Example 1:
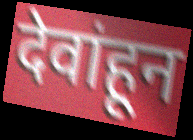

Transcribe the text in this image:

देवांहून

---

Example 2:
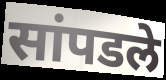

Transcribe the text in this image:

सांपडले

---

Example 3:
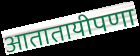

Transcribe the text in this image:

आतातायीपणा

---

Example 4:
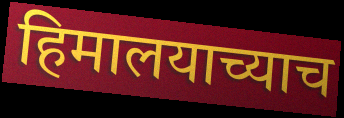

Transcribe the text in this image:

हिमालयाच्याच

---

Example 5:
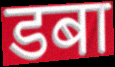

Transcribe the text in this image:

डबा